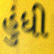
હુંધી